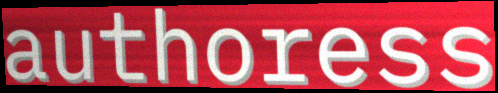
authoress